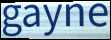
gayne